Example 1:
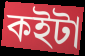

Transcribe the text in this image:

কইটা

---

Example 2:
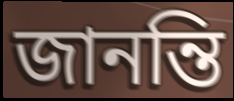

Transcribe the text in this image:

জানন্তি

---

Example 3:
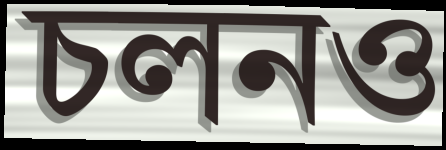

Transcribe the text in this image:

চলনও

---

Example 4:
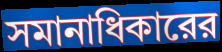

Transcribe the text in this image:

সমানাধিকারের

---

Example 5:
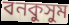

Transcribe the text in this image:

বনকুসুম